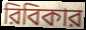
রিবিকার